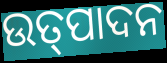
ଉତ୍‌ପାଦନ